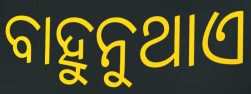
ବାହୁନୁଥାଏ